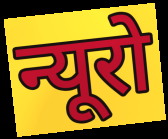
न्यूरो